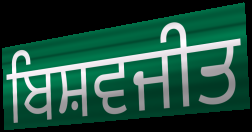
ਬਿਸ਼ਵਜੀਤ